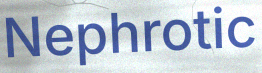
Nephrotic